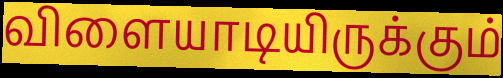
விளையாடியிருக்கும்